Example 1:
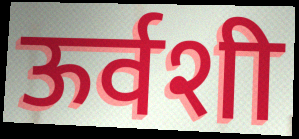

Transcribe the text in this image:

ऊर्वशी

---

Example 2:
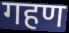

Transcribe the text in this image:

गहण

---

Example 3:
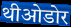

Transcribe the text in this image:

थीओडोर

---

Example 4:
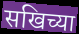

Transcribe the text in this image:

सखिच्या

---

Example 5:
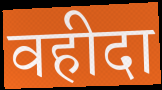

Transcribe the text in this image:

वहीदा